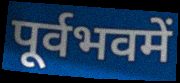
पूर्वभवमें